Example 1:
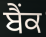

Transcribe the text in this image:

ਬੈਂਕ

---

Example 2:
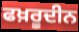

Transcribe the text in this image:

ਫਖ਼ਰੂਦੀਨ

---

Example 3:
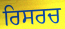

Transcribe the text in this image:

ਰਿਸਰਚ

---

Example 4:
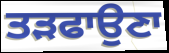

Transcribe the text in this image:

ਤੜਫਾਉਣਾ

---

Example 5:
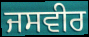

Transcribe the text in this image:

ਜਸਵੀਰ